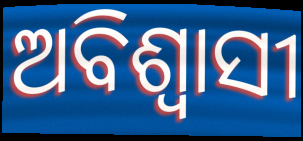
ଅବିଶ୍ଵାସୀ